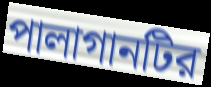
পালাগানটির